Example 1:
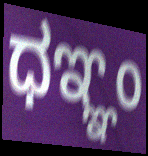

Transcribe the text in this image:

ಧಞ್ಞಂ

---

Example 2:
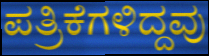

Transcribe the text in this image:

ಪತ್ರಿಕೆಗಳಿದ್ದವು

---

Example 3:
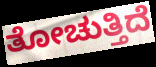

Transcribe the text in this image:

ತೋಚುತ್ತಿದೆ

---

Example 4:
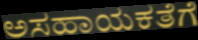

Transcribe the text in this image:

ಅಸಹಾಯಕತೆಗೆ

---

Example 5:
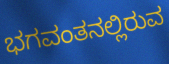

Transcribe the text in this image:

ಭಗವಂತನಲ್ಲಿರುವ